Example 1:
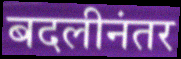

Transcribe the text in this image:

बदलीनंतर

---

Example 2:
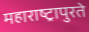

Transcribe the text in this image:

महाराष्ट्रापुरते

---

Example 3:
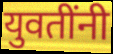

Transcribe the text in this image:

युवतींनी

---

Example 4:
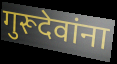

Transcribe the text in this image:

गुरूदेवांना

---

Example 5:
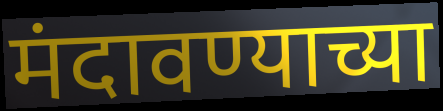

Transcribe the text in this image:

मंदावण्याच्या